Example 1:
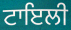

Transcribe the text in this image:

ਟਾਇਲੀ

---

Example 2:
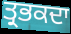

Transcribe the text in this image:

ਤ੍ਰਭਕਦਾ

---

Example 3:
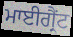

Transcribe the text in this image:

ਮਾਈਗ੍ਰੈਂਟ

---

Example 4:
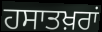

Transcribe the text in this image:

ਹਸਾਤਖ਼ਰਾਂ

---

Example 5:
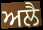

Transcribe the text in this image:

ਅਲੈ